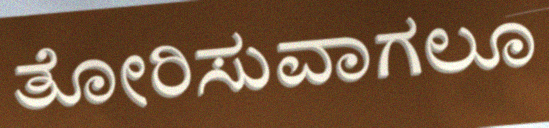
ತೋರಿಸುವಾಗಲೂ